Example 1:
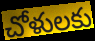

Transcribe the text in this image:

చోళులకు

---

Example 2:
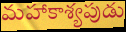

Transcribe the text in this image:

మహాకాశ్యపుడు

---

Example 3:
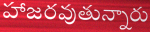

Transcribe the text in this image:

హాజరవుతున్నారు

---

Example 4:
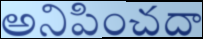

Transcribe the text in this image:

అనిపించదా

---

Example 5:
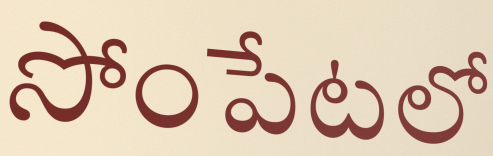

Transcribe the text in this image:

సోంపేటలో